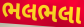
ભલભલા